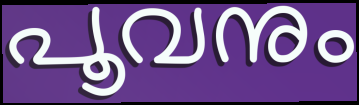
പൂവനും